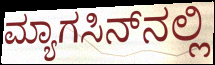
ಮ್ಯಾಗಸಿನ್‍ನಲ್ಲಿ